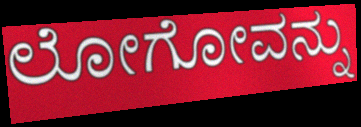
ಲೋಗೋವನ್ನು